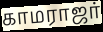
காமராஜர்